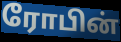
ரோபின்